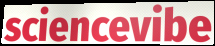
sciencevibe